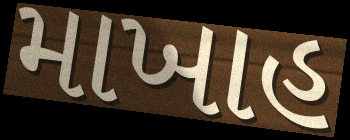
માખાહ